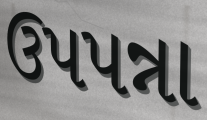
ઉપપન્ના